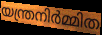
യന്ത്രനിർമ്മിത